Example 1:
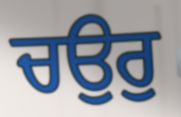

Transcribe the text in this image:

ਚਉਰੁ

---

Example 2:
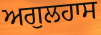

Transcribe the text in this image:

ਅਗੁਲਹਾਸ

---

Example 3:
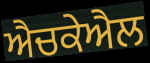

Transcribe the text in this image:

ਐਚਕੇਐਲ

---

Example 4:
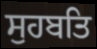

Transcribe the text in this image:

ਸੁਹਬਤਿ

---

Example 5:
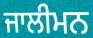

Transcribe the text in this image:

ਜਾਲੀਮਨ